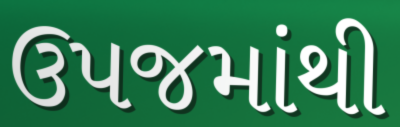
ઉપજમાંથી